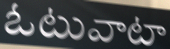
ఓటువాటా